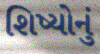
શિષ્યોનું